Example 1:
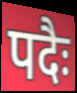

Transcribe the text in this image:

पदैः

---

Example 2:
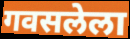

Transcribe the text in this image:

गवसलेला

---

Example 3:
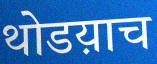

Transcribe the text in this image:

थोडय़ाच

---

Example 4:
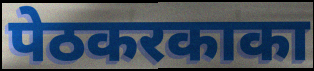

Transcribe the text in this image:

पेठकरकाका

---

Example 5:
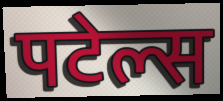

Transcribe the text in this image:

पटेल्स